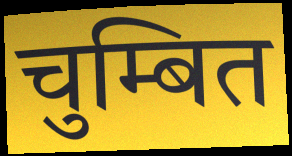
चुम्बित